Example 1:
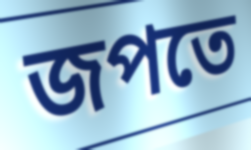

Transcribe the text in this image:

জপতে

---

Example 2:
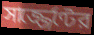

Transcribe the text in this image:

সার্জ্জেণ্টের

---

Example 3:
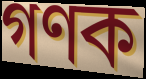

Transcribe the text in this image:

গণক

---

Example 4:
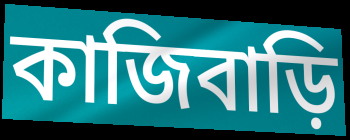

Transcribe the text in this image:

কাজিবাড়ি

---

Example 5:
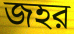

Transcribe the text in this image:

জহর